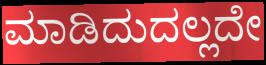
ಮಾಡಿದುದಲ್ಲದೇ